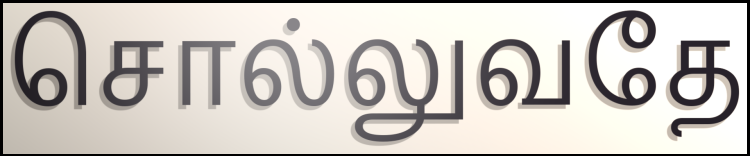
சொல்லுவதே